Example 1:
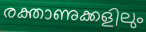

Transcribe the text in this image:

രക്താണുക്കളിലും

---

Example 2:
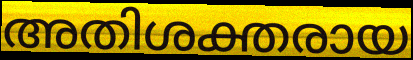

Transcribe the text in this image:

അതിശക്തരായ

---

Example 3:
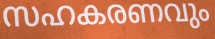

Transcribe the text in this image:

സഹകരണവും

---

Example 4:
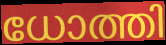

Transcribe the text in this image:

ധോത്തി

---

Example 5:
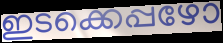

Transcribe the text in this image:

ഇടക്കെപ്പഴോ